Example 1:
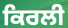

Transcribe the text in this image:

ਕਿਰਲੀ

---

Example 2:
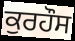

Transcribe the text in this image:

ਕੁਰਹੌਸ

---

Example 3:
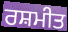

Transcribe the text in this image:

ਰਸ਼ਮੀਤ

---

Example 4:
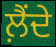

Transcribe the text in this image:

ਲ਼ੈਂਦੇ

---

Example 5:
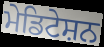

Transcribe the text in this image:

ਮੇਡਿਟੇਸ਼ਨ